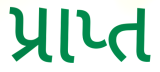
પ્રાપ્ત